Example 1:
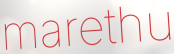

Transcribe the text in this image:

marethu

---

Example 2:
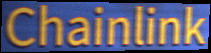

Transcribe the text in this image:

Chainlink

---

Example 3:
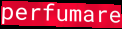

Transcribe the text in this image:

perfumare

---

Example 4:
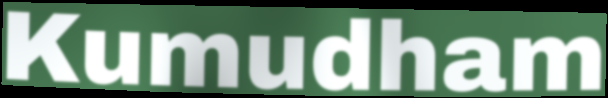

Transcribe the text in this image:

Kumudham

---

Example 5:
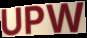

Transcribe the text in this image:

UPW